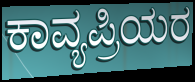
ಕಾವ್ಯಪ್ರಿಯರ